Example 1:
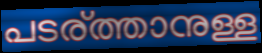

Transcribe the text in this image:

പടര്ത്താനുള്ള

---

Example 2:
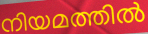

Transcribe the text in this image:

നിയമത്തിൽ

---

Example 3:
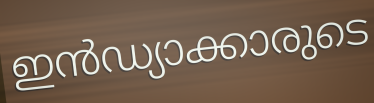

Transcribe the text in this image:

ഇൻഡ്യാക്കാരുടെ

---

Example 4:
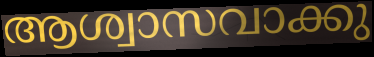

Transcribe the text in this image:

ആശ്വാസവാക്കു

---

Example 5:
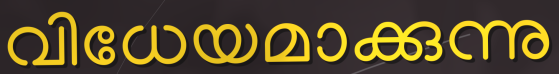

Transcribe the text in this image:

വിധേയമാക്കുന്നു